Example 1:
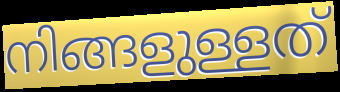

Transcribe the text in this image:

നിങ്ങളുള്ളത്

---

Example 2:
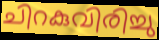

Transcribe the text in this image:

ചിറകുവിരിച്ചു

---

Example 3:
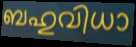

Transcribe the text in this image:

ബഹുവിധാ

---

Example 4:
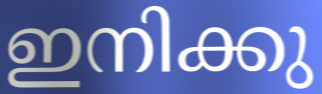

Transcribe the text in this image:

ഇനിക്കു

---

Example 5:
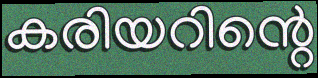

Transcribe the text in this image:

കരിയറിന്റെ